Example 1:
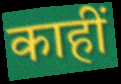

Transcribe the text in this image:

काहीं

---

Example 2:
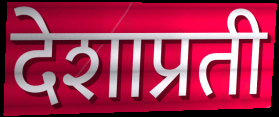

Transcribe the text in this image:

देशाप्रती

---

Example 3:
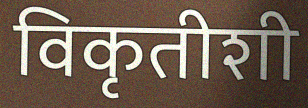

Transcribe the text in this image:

विकृतीशी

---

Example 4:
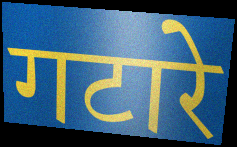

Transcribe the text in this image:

गटारे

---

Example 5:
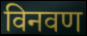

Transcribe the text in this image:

विनवण